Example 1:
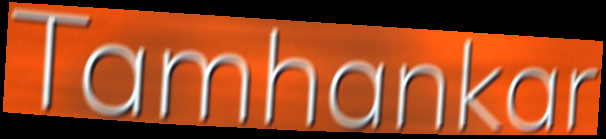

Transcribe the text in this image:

Tamhankar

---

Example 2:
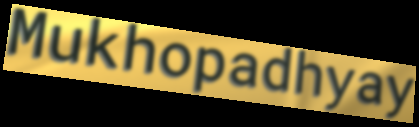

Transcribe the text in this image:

Mukhopadhyay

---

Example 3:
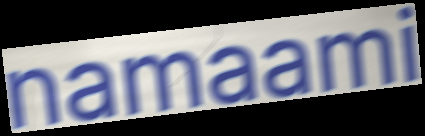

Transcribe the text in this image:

namaami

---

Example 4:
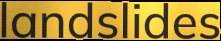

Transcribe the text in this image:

landslides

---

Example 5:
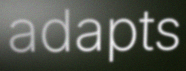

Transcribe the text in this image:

adapts